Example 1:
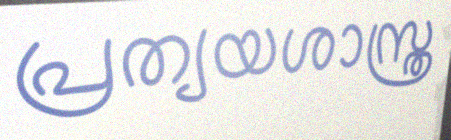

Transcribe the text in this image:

പ്രത്യയശാസ്ത്ര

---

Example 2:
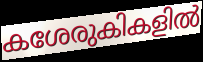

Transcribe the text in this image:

കശേരുകികളിൽ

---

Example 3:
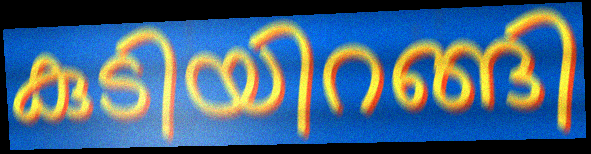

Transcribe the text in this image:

കുടിയിറങ്ങി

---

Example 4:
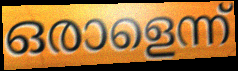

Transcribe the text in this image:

ഒരാളെന്ന്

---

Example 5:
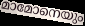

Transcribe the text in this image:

മാമോനെയും